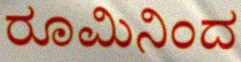
ರೂಮಿನಿಂದ